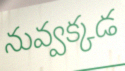
నువ్వక్కడ